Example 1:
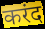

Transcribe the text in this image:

करंद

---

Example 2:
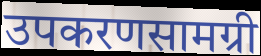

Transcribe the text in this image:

उपकरणसामग्री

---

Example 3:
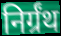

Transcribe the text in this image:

निर्ग्रंथ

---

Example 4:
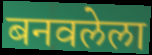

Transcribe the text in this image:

बनवलेला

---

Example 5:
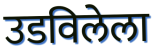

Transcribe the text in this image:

उडविलेला